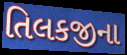
તિલકજીના